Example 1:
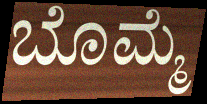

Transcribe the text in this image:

ಬೊಮ್ಮೆ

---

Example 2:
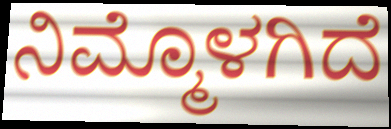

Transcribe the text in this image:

ನಿಮ್ಮೊಳಗಿದೆ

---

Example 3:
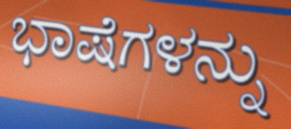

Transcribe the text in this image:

ಭಾಷೆಗಳನ್ನು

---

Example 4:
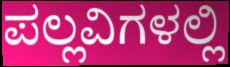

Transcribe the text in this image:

ಪಲ್ಲವಿಗಳಲ್ಲಿ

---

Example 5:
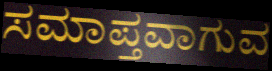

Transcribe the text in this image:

ಸಮಾಪ್ತವಾಗುವ